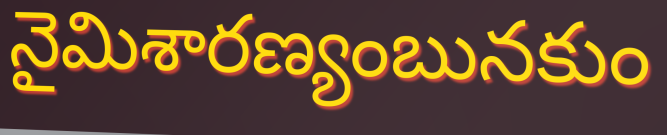
నైమిశారణ్యంబునకుం